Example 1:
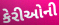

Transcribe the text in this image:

કેરીઓની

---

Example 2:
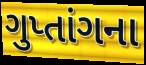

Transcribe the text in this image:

ગુપ્તાંગના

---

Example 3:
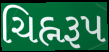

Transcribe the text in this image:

ચિહ્નરૂપ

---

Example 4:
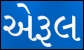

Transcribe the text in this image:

એરૂલ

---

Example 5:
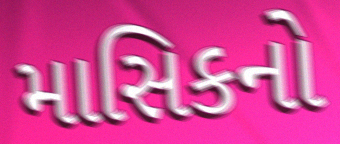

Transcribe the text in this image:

માસિકનો